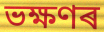
ভক্ষণৰ